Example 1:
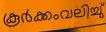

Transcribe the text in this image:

കൂർക്കംവലിച്ചു്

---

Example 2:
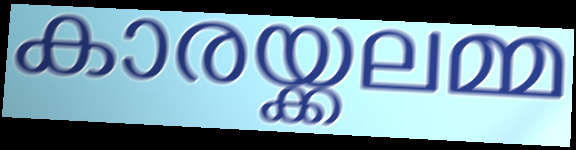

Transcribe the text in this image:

കാരയ്ക്കലമ്മ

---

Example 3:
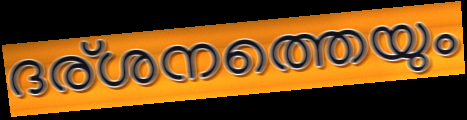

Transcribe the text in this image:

ദര്ശനത്തെയും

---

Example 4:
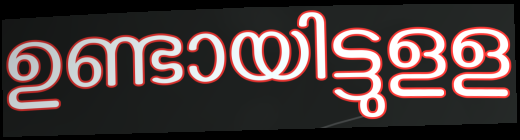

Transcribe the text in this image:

ഉണ്ടായിട്ടുളള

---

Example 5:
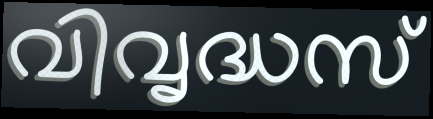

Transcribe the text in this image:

വിവൃദ്ധസ്